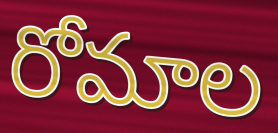
రోమాల